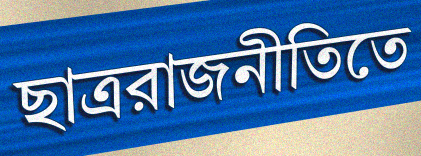
ছাত্ররাজনীতিতে